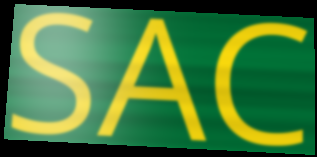
SAC